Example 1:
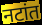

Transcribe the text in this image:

नटांत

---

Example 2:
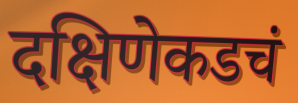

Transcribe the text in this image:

दक्षिणेकडचं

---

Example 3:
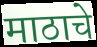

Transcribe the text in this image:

माठाचे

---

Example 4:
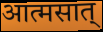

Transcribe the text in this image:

आत्मसात्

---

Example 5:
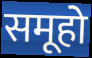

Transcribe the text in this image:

समूहो